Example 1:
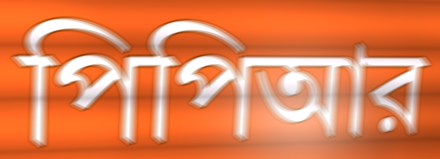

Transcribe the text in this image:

পিপিআর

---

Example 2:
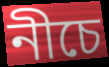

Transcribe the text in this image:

নীচে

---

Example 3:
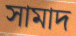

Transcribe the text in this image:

সামাদ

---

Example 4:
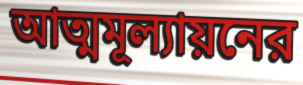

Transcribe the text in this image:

আত্মমূল্যায়নের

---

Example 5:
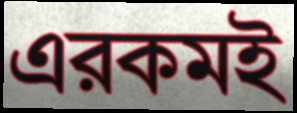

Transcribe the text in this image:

এরকমই